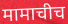
मामाचीच